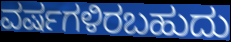
ವರ್ಷಗಳಿರಬಹುದು